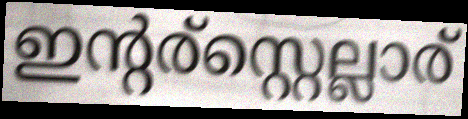
ഇന്റര്സ്റ്റെല്ലാര്